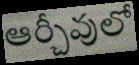
ఆర్చీవులో